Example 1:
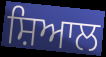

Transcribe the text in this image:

ਸ਼ਿਆਲ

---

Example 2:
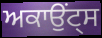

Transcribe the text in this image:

ਅਕਾਉਂਟ੍ਸ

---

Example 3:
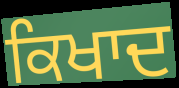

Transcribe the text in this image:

ਕਿਖਾਦ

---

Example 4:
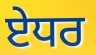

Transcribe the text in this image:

ਏਧਰ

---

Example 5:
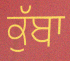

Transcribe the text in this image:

ਕੁੱਬਾ